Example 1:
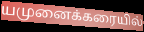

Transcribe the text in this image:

யமுனைக்கரையில்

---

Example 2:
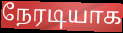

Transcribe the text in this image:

நேரடியாக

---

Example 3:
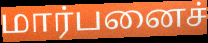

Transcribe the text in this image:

மார்பனைச்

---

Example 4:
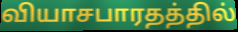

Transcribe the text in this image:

வியாசபாரதத்தில்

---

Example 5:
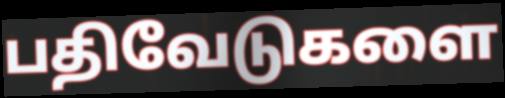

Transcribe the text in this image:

பதிவேடுகளை